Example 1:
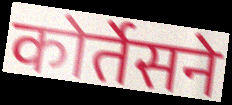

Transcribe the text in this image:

कोर्तेसने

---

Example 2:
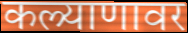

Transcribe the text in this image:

कल्याणावर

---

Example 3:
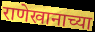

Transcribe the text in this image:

राणेखानाच्या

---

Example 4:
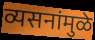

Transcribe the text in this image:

व्यसनांमुळे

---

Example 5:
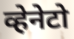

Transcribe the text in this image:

व्हेनेटो